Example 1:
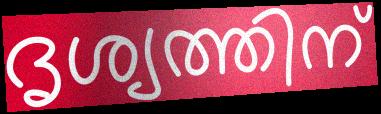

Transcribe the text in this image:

ദൃശ്യത്തിന്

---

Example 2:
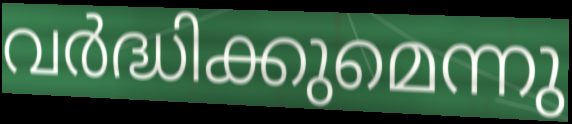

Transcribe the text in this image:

വർദ്ധിക്കുമെന്നു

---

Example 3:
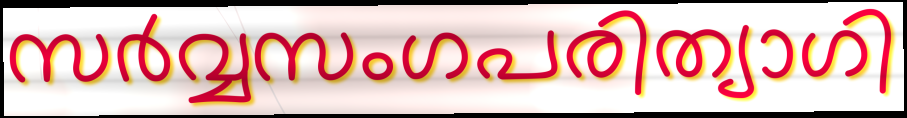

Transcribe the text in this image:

സർവ്വസംഗപരിത്യാഗി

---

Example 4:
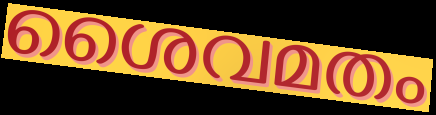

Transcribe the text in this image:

ശൈവമതം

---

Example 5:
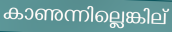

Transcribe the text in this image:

കാണുന്നില്ലെങ്കില്